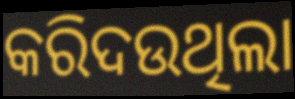
କରିଦଉଥିଲା